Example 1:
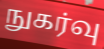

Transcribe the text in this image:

நுகர்வு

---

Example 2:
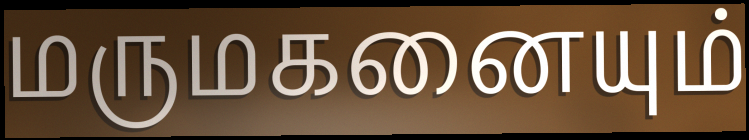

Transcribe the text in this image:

மருமகனையும்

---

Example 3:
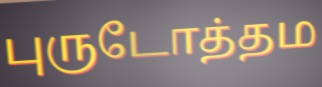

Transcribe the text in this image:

புருடோத்தம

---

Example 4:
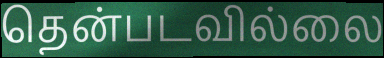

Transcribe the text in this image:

தென்படவில்லை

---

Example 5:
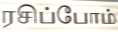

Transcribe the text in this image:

ரசிப்போம்